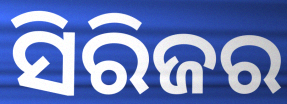
ସିରିଜର